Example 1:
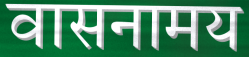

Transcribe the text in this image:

वासनामय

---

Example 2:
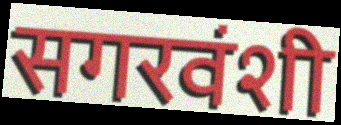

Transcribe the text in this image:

सगरवंशी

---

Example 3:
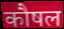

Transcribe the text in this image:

कौषल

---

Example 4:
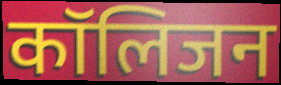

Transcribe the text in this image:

कॉलिजन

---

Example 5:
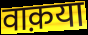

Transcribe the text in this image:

वाक़या